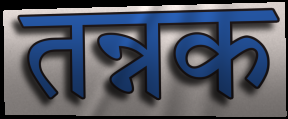
तन्नक